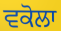
ਵਕੋਲਾ